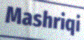
Mashriqi